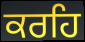
ਕਰਹਿ